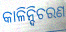
କାଳିନ୍ଦିଚରଣ